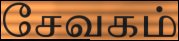
சேவகம்